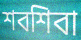
শবশিবা